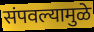
संपवल्यामुळे